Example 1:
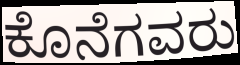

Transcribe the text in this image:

ಕೊನೆಗವರು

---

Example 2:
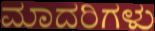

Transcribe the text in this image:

ಮಾದರಿಗಳು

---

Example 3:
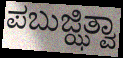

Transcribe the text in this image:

ಪಬುಜ್ಝಿತ್ವಾ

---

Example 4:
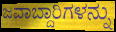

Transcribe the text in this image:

ಜವಾಬ್ದಾರಿಗಳನ್ನು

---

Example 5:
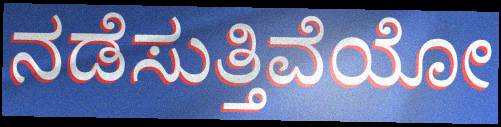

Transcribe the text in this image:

ನಡೆಸುತ್ತಿವೆಯೋ